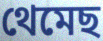
থেমেছ